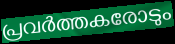
പ്രവർത്തകരോടും